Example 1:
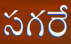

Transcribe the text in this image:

సగరే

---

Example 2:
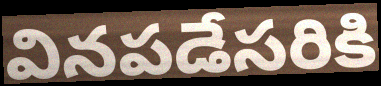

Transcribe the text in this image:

వినపడేసరికి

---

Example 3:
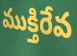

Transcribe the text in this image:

ముక్తిరేవ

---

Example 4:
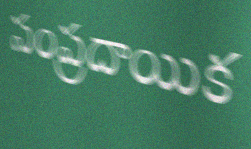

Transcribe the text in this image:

సంప్రదాయిక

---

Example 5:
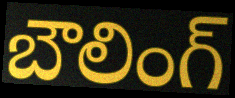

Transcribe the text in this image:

బౌలింగ్